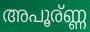
അപൂര്ണ്ണ